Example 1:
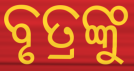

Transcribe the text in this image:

ବୃତ୍ରଙ୍କୁ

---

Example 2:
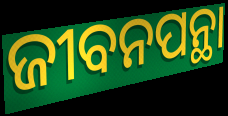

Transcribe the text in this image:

ଜୀବନପନ୍ଥା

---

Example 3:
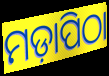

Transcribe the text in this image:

ମଡ଼ାପିଠା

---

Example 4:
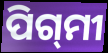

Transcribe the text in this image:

ପିଗ୍‌ମୀ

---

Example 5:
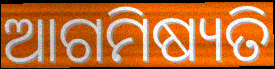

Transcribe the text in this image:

ଆଗମିଷ୍ୟତି